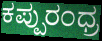
ಕಪ್ಪುರಂಧ್ರ